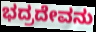
ಭದ್ರದೇವನು